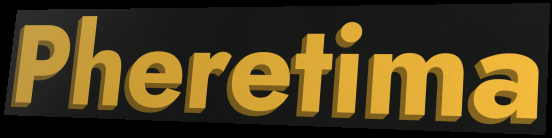
Pheretima